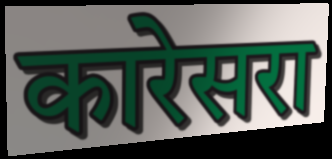
कारेसरा